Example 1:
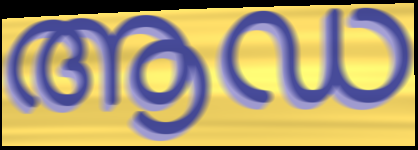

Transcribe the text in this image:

ആഡ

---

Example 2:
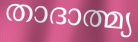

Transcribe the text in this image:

താദാത്മ്യ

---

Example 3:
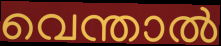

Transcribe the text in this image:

വെന്താൽ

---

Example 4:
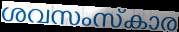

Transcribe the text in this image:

ശവസംസ്‌കാര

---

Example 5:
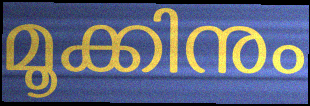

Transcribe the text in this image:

മൂക്കിനും